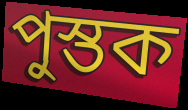
পুস্তক